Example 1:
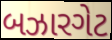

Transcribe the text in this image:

બઝારગેટ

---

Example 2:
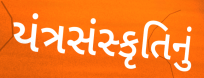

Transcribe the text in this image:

યંત્રસંસ્કૃતિનું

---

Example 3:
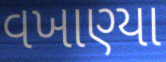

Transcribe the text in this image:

વખાણ્યા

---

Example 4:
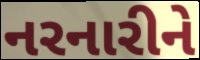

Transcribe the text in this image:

નરનારીને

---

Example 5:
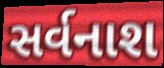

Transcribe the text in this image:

સર્વનાશ